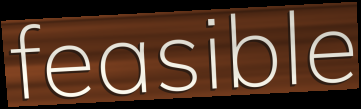
feasible